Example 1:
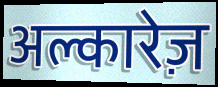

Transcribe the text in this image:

अल्कारेज़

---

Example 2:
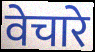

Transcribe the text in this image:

वेचारे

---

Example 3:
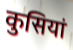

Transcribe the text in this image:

कुसियां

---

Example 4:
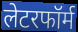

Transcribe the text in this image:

लेटरफॉर्म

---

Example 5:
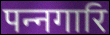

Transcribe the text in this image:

पन्नगारि